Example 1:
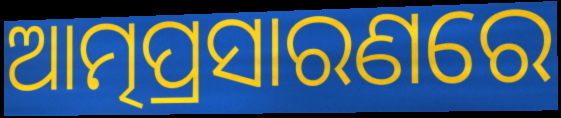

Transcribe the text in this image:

ଆତ୍ମପ୍ରସାରଣରେ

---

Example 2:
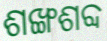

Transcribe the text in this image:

ଶଙ୍ଖଶବ୍ଦ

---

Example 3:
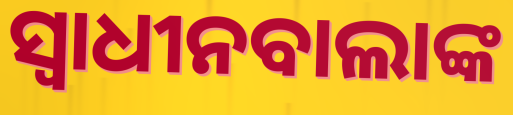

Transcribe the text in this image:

ସ୍ୱାଧୀନବାଲାଙ୍କ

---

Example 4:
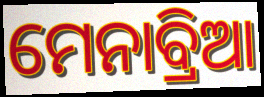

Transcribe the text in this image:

ମେନାବ୍ରିଆ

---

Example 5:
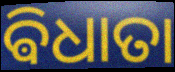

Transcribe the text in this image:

ଵିଧାତା